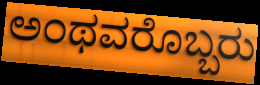
ಅಂಥವರೊಬ್ಬರು